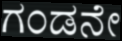
ಗಂಡನೇ